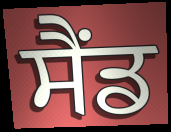
ਸੈਂਡ